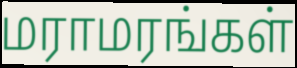
மராமரங்கள்